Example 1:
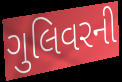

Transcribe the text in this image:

ગુલિવરની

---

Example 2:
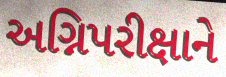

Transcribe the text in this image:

અગ્નિપરીક્ષાને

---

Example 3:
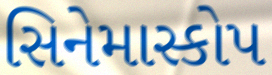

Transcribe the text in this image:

સિનેમાસ્કોપ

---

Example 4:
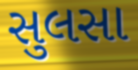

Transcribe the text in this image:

સુલસા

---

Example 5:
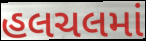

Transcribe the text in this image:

હલચલમાં